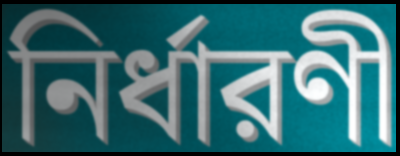
নির্ধারণী